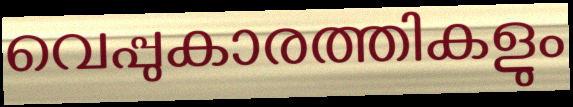
വെപ്പുകാരത്തികളും